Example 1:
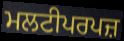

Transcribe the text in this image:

ਮਲਟੀਪਰਪਜ਼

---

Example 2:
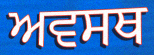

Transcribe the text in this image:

ਅਵਸਥ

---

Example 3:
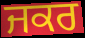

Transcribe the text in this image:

ਜਕਰ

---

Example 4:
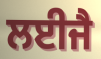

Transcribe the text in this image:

ਲਈਜੈ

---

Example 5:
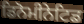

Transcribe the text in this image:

ਡਿਨੋਮੀਨੇਟਿਡ